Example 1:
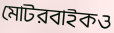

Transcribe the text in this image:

মোটরবাইকও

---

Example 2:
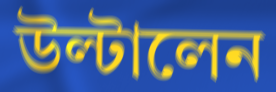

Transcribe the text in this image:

উল্টালেন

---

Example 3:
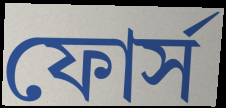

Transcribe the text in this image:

ফোর্স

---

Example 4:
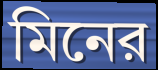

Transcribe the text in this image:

মিনের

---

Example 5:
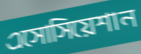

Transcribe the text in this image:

এসোসিয়েশান